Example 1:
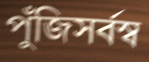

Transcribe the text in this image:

পুঁজিসর্বস্ব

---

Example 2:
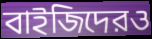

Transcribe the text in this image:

বাইজিদেরও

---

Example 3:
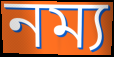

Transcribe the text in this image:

নম্য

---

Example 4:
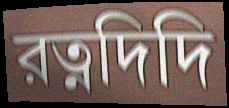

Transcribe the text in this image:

রত্নদিদি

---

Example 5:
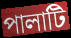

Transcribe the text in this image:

পালাটি